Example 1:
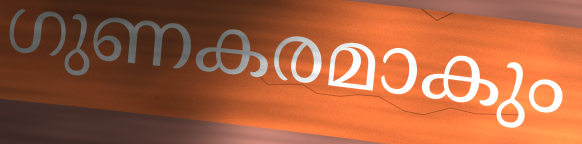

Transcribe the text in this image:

ഗുണകരമാകും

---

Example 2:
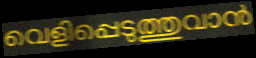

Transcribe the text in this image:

വെളിപ്പെടുത്തുവാൻ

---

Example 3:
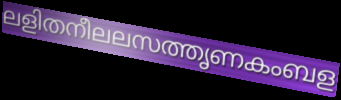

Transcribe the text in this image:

ലളിതനീലലസത്തൃണകംബള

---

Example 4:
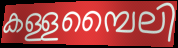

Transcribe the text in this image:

കള്ളമ്പൈലി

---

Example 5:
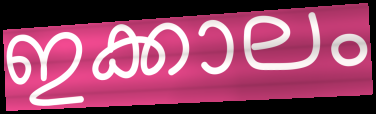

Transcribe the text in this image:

ഇക്കാലം